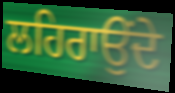
ਲਹਿਰਾਉਂਦੇ